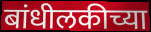
बांधीलकीच्या